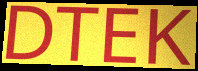
DTEK